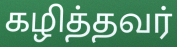
கழித்தவர்